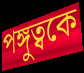
পঙ্গুত্বকে